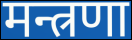
मन्त्रणा